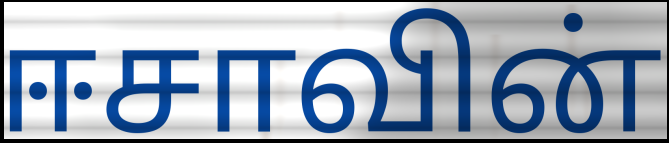
ஈசாவின்